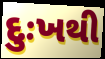
દુઃખથી